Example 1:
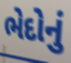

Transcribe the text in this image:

ભેદોનું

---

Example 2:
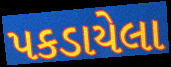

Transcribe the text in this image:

પકડાયેલા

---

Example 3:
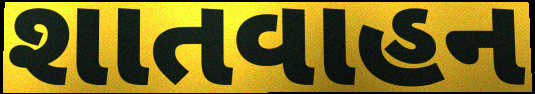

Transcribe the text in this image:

શાતવાહન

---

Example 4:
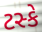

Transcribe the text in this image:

ટસ્કે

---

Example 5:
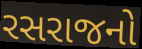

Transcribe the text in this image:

રસરાજનો